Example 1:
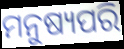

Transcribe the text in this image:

ମନୁଷ୍ୟପରି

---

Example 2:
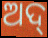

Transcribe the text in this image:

ଅଦ୍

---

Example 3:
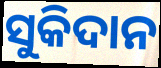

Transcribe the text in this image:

ସୁକିଦାନ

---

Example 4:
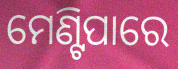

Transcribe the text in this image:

ମେଣ୍ଟିପାରେ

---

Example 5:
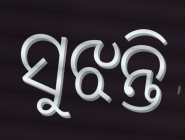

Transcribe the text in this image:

ସୁଝନ୍ତି